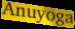
Anuyoga